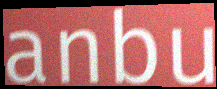
anbu